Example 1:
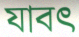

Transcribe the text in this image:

যাবৎ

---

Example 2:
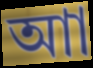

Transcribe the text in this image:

আা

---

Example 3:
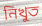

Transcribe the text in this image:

নিখুত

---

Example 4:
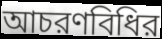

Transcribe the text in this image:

আচরণবিধির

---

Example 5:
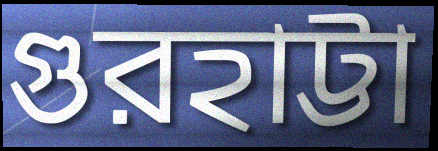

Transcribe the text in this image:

গুরহাট্টা